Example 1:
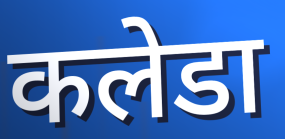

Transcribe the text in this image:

कलेडा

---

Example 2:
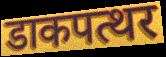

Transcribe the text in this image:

डाकपत्थर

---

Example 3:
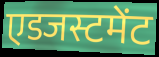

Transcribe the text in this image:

एडजस्टमेंट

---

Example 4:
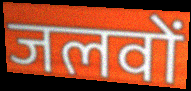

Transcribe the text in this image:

जलवों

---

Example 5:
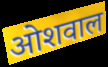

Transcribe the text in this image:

ओशवाल